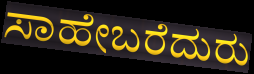
ಸಾಹೇಬರೆದುರು